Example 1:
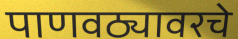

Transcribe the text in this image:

पाणवठ्यावरचे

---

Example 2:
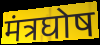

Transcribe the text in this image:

मंत्रघोष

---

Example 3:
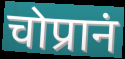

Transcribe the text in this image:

चोप्रानं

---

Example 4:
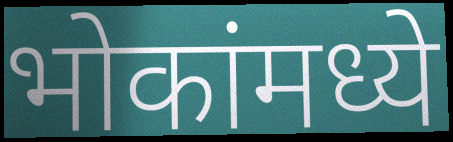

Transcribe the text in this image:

भोकांमध्ये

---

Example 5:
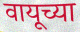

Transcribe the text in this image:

वायूच्या